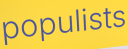
populists